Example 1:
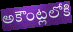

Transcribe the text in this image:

అకౌంట్లలోకి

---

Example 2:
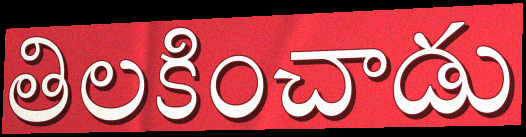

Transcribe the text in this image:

తిలకించాడు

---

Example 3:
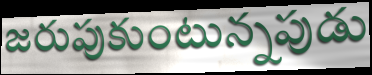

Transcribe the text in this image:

జరుపుకుంటున్నపుడు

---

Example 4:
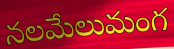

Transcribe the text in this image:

నలమేలుమంగ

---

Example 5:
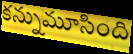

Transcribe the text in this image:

కన్నుమూసింది